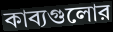
কাব্যগুলোর